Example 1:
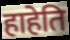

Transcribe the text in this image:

हाहेति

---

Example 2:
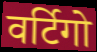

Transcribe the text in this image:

वर्टिगो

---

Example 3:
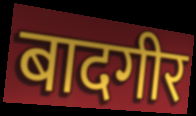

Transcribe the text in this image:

बादगीर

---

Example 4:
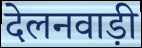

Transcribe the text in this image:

देलनवाड़ी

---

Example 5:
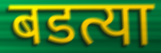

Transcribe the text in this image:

बडत्या